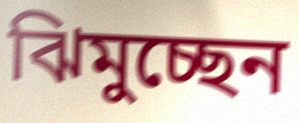
ঝিমুচ্ছেন